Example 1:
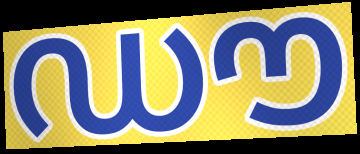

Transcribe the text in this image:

ഡൗ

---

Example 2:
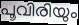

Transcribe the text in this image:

പൂവിരിയും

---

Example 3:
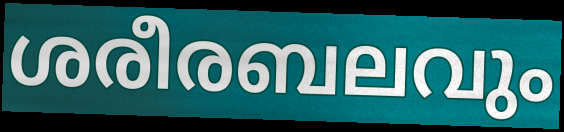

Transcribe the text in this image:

ശരീരബലവും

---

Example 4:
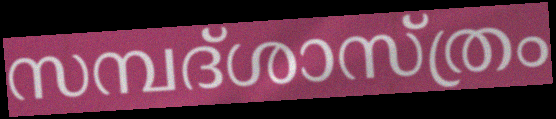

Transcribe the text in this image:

സമ്പദ്ശാസ്ത്രം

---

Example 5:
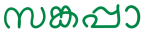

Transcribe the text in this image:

സങ്കപ്പാ